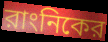
রাংনিকের